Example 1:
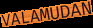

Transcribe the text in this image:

VALAMUDAN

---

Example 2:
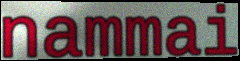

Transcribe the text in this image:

nammai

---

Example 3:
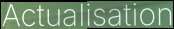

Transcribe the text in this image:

Actualisation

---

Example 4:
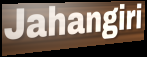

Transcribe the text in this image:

Jahangiri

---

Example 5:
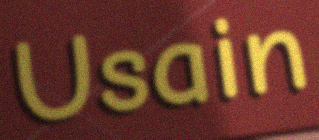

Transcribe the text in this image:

Usain